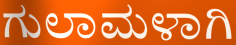
ಗುಲಾಮಳಾಗಿ